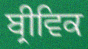
ਬ੍ਰੀਵਿਕ